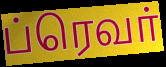
ப்ரெவர்